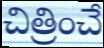
చిత్రించే